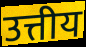
उत्तीय